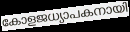
കോളജധ്യാപകനായി